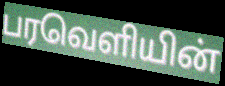
பரவெளியின்